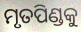
ମୃତପିଣ୍ଡକୁ